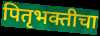
पितृभक्तीचा